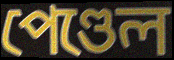
পেণ্ডেল